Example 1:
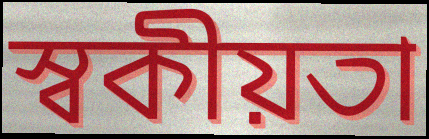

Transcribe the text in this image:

স্বকীয়তা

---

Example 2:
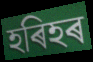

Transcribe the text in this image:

হৰিহৰ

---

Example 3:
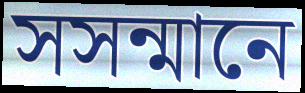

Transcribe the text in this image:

সসন্মানে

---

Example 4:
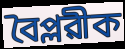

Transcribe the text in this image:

বৈপ্লৱীক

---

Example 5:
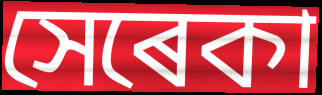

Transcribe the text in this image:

সেৰেকা